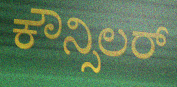
ಕೌನ್ಸಿಲರ್